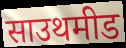
साउथमीड